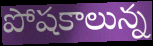
పోషకాలున్న